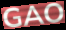
GAO